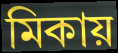
মিকায়